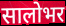
सालोभर